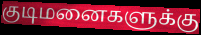
குடிமனைகளுக்கு